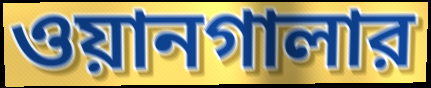
ওয়ানগালার